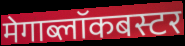
मेगाब्लॉकबस्टर